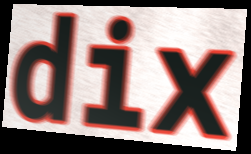
dix